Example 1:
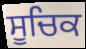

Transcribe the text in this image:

ਸੂਚਿਕ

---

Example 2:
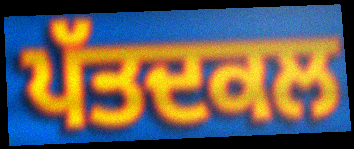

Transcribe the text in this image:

ਪੱਤਦਕਲ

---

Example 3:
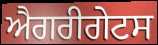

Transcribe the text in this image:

ਐਗਰੀਗੇਟਸ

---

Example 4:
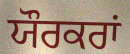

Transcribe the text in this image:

ਯੌਰਕਰਾਂ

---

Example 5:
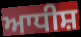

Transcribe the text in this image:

ਆਧੀਸ਼